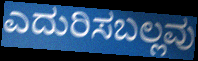
ಎದುರಿಸಬಲ್ಲವು